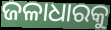
ଜଳାଧାରକୁ